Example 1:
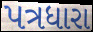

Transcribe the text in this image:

પત્રધારા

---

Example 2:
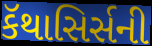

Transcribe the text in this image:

કૅથાસિર્સની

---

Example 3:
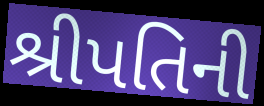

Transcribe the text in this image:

શ્રીપતિની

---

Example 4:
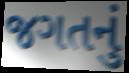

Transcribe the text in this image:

જગતનું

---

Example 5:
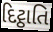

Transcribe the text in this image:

દિટ્ઠાતિ